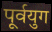
पूर्वयुग